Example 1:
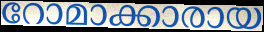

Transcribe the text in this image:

റോമാക്കാരായ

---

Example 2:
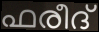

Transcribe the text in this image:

ഫരീദ്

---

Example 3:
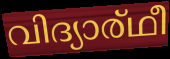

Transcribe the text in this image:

വിദ്യാര്ഥീ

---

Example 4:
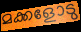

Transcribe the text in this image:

മക്കളോടു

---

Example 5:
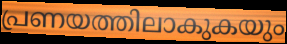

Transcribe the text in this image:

പ്രണയത്തിലാകുകയും